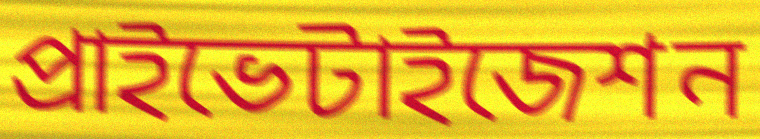
প্রাইভেটাইজেশন